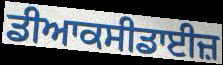
ਡੀਆਕਸੀਡਾਈਜ਼